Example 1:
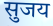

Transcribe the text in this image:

सुजय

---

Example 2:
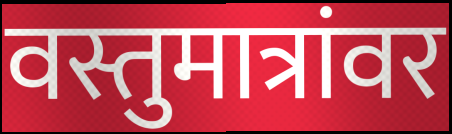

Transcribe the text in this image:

वस्तुमात्रांवर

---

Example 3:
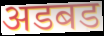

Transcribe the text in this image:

अडबड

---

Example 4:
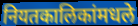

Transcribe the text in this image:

नियतकालिकांमधले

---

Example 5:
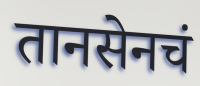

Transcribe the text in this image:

तानसेनचं